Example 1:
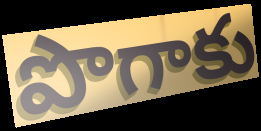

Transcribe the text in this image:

పొగాకు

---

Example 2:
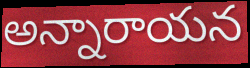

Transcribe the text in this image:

అన్నారాయన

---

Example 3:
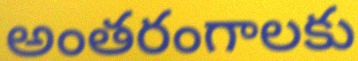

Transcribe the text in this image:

అంతరంగాలకు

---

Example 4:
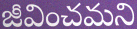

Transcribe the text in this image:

జీవించమని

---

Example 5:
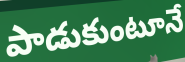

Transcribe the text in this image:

పాడుకుంటూనే